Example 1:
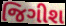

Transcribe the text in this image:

જિગીશ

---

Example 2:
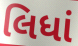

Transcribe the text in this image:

લિધાં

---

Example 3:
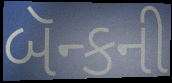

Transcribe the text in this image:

બૅન્કની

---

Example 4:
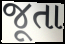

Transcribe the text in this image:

જૂતા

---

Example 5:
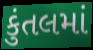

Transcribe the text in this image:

કુંતલમાં